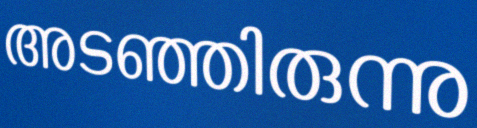
അടഞ്ഞിരുന്നു